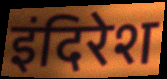
इंदिरेश